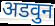
अडवुन